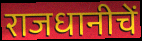
राजधानीचें